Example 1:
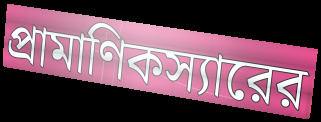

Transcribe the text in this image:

প্রামাণিকস্যারের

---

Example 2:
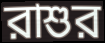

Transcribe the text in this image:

রাশুর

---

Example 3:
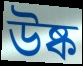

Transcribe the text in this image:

উষ্ক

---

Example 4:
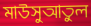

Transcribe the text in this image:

মাউসুআতুল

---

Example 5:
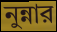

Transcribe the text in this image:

নুন্নার